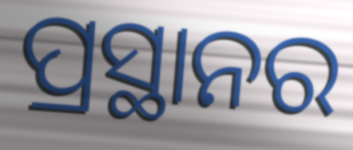
ପ୍ରସ୍ଥାନର